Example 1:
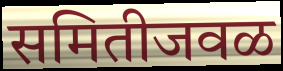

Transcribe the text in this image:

समितीजवळ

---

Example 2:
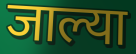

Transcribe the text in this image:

जाल्या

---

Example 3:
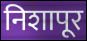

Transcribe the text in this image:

निशापूर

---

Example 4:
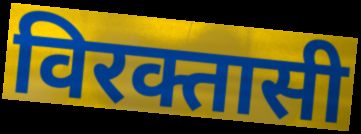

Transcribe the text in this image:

विरक्तासी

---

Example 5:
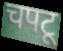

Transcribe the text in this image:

चपटू